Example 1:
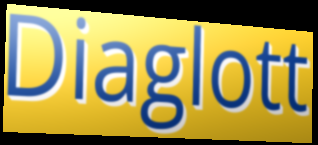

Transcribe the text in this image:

Diaglott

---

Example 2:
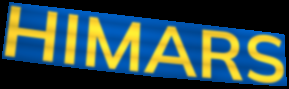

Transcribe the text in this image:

HIMARS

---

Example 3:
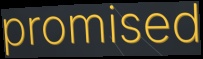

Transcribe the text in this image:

promised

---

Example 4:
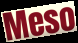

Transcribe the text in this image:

Meso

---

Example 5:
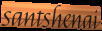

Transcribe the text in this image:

santshenai